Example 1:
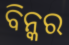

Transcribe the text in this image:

ବିନ୍କର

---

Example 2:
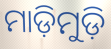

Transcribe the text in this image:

ମାଡ଼ିମୁଡ଼ି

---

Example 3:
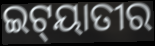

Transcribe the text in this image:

ଇଟ୍‍ୟାତୀର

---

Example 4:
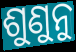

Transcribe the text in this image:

ଶୁଣୁନୁ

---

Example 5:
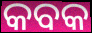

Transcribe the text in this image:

କବକ